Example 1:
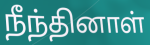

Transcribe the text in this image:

நீந்தினாள்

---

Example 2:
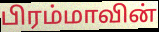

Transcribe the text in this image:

பிரம்மாவின்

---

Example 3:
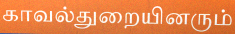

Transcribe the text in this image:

காவல்துறையினரும்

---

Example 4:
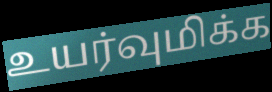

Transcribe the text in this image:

உயர்வுமிக்க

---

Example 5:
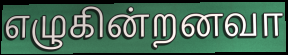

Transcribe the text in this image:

எழுகின்றனவா